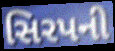
સિરપની